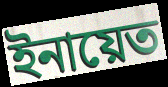
ইনায়েত